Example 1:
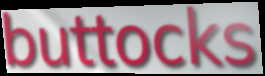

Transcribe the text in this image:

buttocks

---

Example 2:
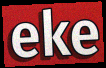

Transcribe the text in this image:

eke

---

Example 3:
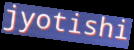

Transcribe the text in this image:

jyotishi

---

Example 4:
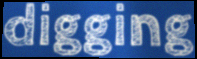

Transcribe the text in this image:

digging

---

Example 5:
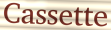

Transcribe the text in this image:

Cassette